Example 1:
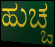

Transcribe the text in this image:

ಹುಚ್ಚ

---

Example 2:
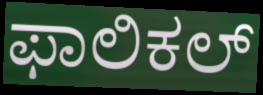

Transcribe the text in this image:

ಫಾಲಿಕಲ್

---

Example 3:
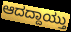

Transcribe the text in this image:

ಆದದ್ದಾಯ್ತು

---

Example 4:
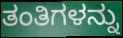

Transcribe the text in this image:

ತಂತಿಗಳನ್ನು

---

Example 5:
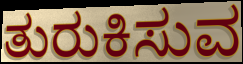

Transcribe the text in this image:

ತುರುಕಿಸುವ